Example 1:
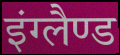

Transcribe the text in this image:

इंग्लैण्ड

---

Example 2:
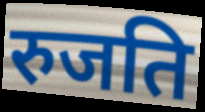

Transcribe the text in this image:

रुजति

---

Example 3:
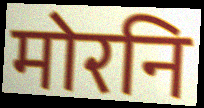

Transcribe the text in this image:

मोरनि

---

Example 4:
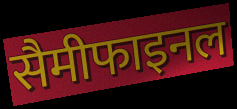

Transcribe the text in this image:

सैमीफाइनल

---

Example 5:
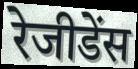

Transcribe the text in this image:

रेजीडेंस